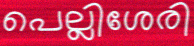
പെല്ലിശേരി